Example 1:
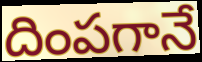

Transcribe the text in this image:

దింపగానే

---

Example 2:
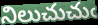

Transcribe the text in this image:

నిలుచుచుఁ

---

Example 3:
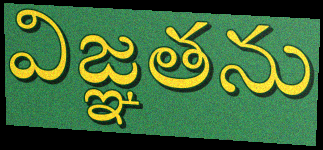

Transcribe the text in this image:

విజ్ఞతను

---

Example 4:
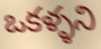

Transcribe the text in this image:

ఒకళ్ళని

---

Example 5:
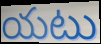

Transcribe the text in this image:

యటు